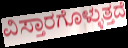
ವಿಸ್ತಾರಗೊಳ್ಳುತ್ತದೆ